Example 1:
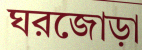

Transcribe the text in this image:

ঘরজোড়া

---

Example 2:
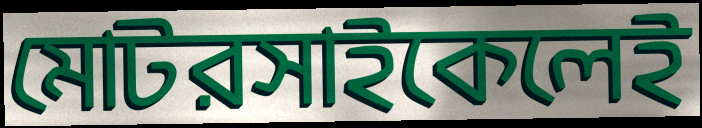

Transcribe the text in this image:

মোটরসাইকেলেই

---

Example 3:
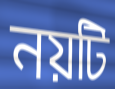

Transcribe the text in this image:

নয়টি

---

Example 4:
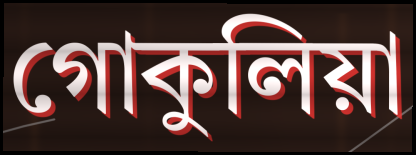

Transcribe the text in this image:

গোকুলিয়া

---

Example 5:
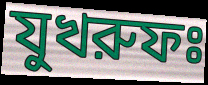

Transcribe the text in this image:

যুখরুফঃ